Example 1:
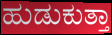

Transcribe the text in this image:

ಹುಡುಕುತ್ತಾ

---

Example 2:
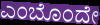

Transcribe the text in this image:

ಎಂಬೊಂದೇ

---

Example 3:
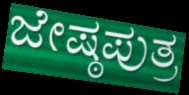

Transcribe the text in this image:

ಜೇಷ್ಠಪುತ್ರ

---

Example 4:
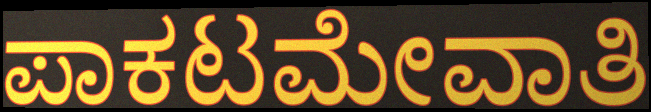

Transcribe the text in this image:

ಪಾಕಟಮೇವಾತಿ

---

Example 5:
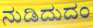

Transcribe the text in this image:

ನುಡಿದುದಂ